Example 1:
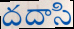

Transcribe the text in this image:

దదాసి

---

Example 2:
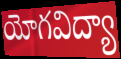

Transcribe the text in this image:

యోగవిద్యా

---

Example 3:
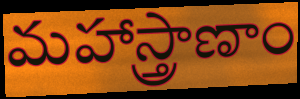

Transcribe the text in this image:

మహాస్త్రాణాం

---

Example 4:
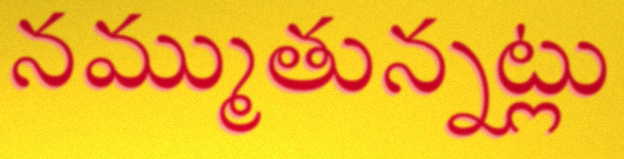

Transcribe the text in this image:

నమ్ముతున్నట్లు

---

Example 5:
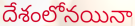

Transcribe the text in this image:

దేశంలోనయినా